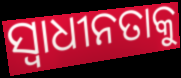
ସ୍ୱାଧୀନତାକୁ